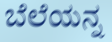
ಬೆಲೆಯನ್ನ